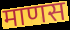
माणस